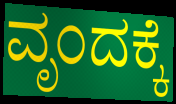
ವೃಂದಕ್ಕೆ